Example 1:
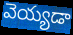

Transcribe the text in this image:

వెయ్యడా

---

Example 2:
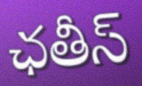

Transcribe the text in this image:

ఛతీస్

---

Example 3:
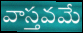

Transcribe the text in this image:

వాస్తవమే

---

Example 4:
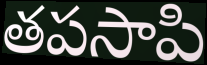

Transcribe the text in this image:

తపసాపి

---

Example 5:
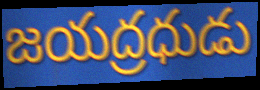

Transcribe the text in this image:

జయద్రధుడు